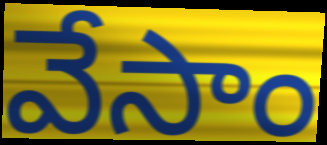
వేసాం